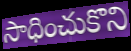
సాధించుకొని